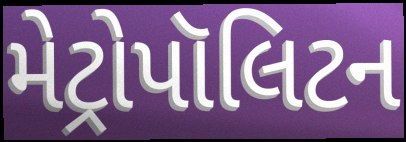
મેટ્રોપૉલિટન